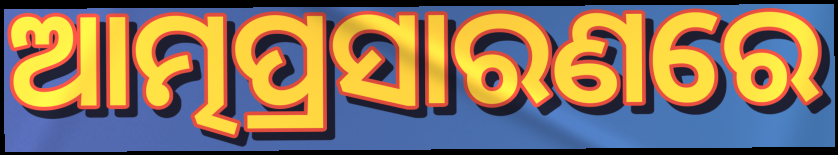
ଆତ୍ମପ୍ରସାରଣରେ